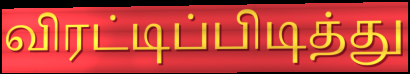
விரட்டிப்பிடித்து